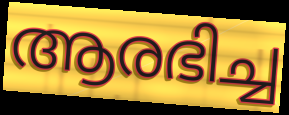
ആരഭിച്ച